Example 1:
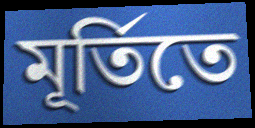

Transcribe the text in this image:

মূর্তিতে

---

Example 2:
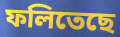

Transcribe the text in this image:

ফলিতেছে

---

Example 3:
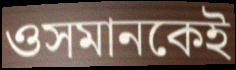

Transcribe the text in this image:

ওসমানকেই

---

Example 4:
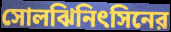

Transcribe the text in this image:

সোলঝিনিৎসিনের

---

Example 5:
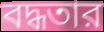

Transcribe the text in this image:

বদ্ধতার